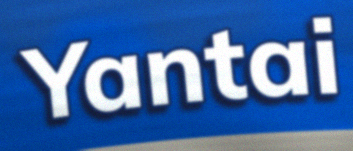
Yantai